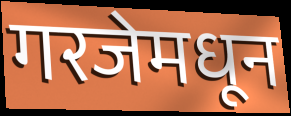
गरजेमधून